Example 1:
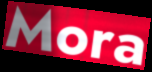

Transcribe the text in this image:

Mora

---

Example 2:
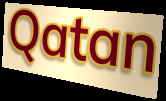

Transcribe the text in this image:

Qatan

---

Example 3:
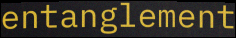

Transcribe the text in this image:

entanglement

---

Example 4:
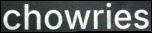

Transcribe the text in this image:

chowries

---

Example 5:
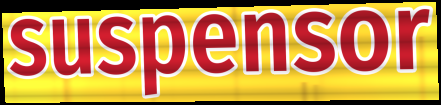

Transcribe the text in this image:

suspensor